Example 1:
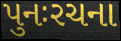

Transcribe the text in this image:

પુનઃરચના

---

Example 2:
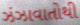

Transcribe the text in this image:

ઝંઝાવાતોથી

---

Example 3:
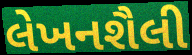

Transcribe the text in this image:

લેખનશૈલી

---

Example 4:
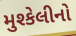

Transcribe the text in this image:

મુશ્કેલીનો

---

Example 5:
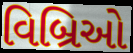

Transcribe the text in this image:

વિબ્રિઓ